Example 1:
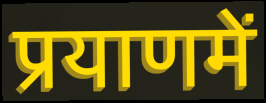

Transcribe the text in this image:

प्रयाणमें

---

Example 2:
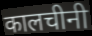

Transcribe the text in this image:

कालचीनी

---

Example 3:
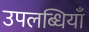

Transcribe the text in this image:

उपलब्धियाँ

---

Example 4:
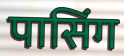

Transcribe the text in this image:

पासिंग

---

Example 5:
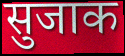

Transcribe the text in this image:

सुजाक